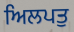
ਅਿਲਪਤੁ